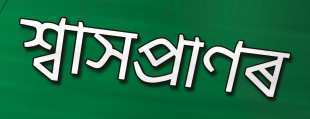
শ্বাসপ্ৰাণৰ